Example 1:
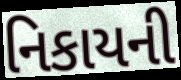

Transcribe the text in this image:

નિકાયની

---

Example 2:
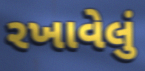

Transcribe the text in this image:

રખાવેલું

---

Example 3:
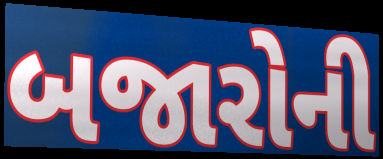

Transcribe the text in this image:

બજારોની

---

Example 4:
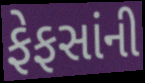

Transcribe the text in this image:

ફેફસાંની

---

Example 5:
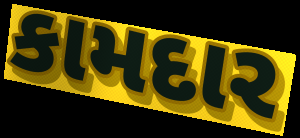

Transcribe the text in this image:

કામદાર